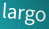
largo